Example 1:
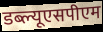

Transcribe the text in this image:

डब्ल्यूएसपीएम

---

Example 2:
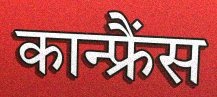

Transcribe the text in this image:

कान्फ्रैंस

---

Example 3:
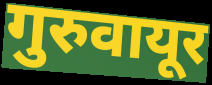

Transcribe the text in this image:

गुरुवायूर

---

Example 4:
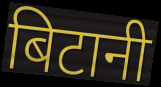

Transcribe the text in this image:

बिटानी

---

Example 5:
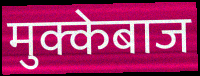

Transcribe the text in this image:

मुक्केबाज